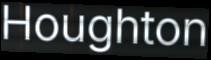
Houghton